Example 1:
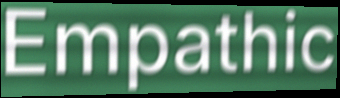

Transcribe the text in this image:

Empathic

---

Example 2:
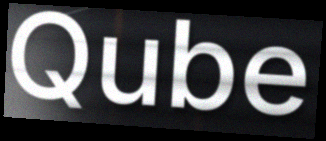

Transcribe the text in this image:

Qube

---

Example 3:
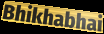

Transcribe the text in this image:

Bhikhabhai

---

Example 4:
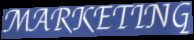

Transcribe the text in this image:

MARKETING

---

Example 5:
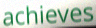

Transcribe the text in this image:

achieves